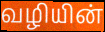
வழியின்